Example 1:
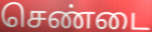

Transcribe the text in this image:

செண்டை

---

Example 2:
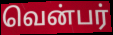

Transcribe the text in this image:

வென்பர்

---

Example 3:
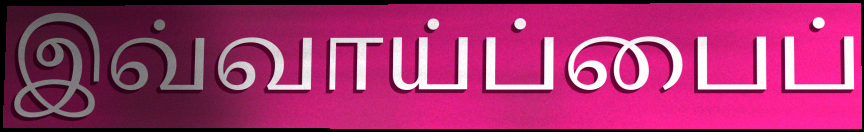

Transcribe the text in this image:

இவ்வாய்ப்பைப்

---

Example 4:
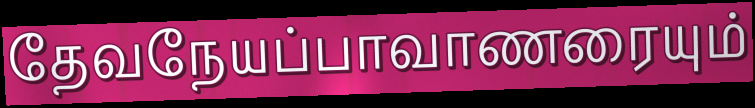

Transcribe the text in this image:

தேவநேயப்பாவாணரையும்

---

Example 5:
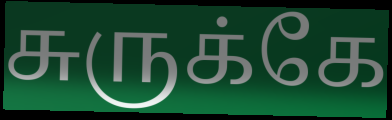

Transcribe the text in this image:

சுருக்கே